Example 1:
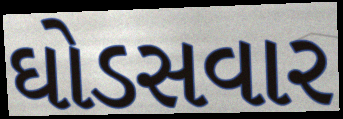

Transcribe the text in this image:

ઘોડસવાર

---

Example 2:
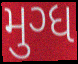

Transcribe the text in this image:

મુગ્ધ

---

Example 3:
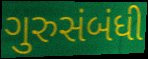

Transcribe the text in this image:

ગુરુસંબંધી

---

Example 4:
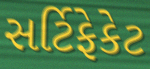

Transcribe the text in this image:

સર્ટિફેકેટ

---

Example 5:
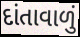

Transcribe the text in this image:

દાંતાવાળું